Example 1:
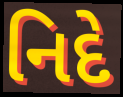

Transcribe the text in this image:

નિદે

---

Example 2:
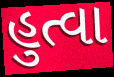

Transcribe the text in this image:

હુત્વા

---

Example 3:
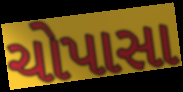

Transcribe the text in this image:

ચોપાસા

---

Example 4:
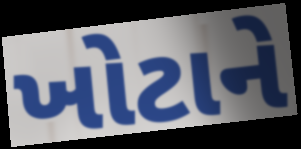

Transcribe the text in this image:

ખોટાને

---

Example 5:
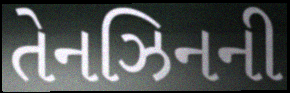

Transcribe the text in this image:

તેનઝિનની